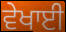
ਵੇਖਾਈ